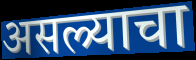
असल्याचा